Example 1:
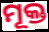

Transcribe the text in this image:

ମୂକ୍ତ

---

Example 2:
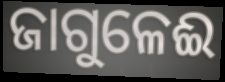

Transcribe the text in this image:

ଜାଗୁଳେଈ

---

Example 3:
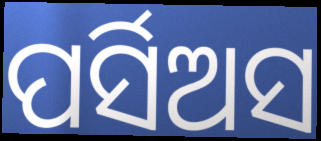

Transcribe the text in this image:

ପର୍ସିଅସ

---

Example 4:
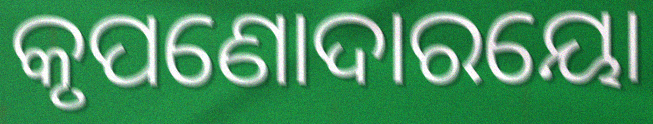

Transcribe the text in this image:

କୃପଣୋଦାରୟୋ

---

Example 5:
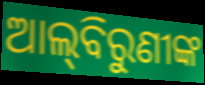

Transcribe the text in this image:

ଆଲ୍‌ବିରୁଣୀଙ୍କ